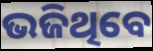
ଭଜିଥିବେ